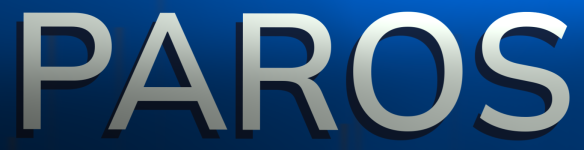
PAROS